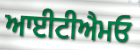
ਆਈਟੀਐਮਓ